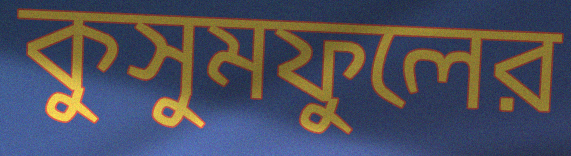
কুসুমফুলের